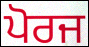
ਪੋਰਜ